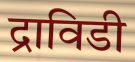
द्राविडी